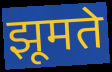
झूमते